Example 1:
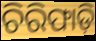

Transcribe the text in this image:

ଚିରିଫାଡ଼ି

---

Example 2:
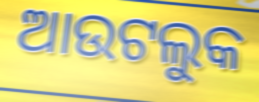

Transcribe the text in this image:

ଆଉଟଲୁକ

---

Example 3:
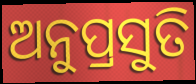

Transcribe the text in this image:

ଅନୁପ୍ରସୁତି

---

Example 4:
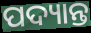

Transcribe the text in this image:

ପଦ୍ୟାନ୍ତ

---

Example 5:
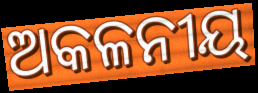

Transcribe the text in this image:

ଅକଳନୀୟ